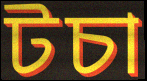
টচা